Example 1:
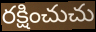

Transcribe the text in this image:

రక్షించుచు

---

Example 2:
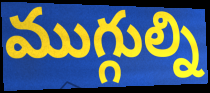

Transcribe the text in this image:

ముగ్గుల్ని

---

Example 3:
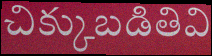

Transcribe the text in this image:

చిక్కుబడితివి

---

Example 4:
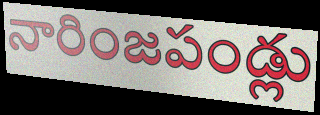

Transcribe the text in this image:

నారింజపండ్లు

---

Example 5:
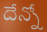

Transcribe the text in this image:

దేన్నో